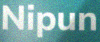
Nipun